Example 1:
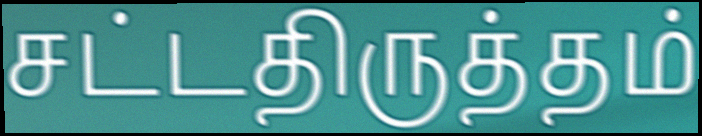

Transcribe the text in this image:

சட்டதிருத்தம்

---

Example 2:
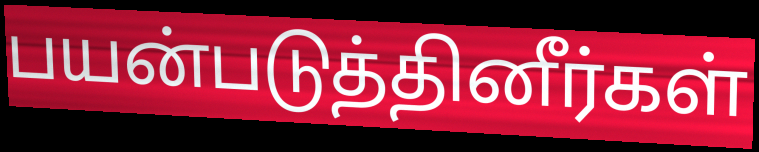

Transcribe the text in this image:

பயன்படுத்தினீர்கள்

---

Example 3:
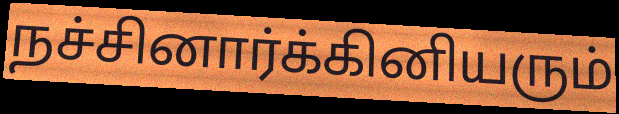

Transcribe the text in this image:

நச்சினார்க்கினியரும்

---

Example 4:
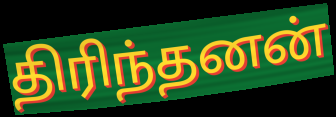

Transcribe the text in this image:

திரிந்தனன்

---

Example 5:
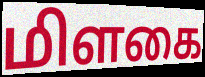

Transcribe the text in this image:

மிளகை